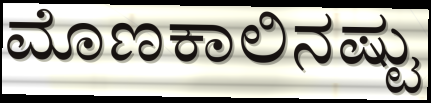
ಮೊಣಕಾಲಿನಷ್ಟು